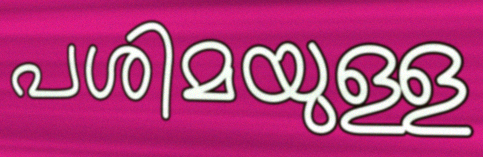
പശിമയുള്ള